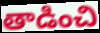
తాడించి